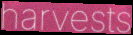
harvests